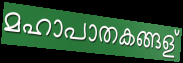
മഹാപാതകങ്ങള്